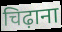
चिढ़ाना